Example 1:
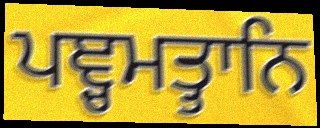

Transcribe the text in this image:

ਪਞ੍ਚਮਤ੍ਤਾਨਿ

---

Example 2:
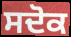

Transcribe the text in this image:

ਸਦੋਕ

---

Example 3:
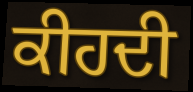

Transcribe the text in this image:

ਕੀਹਦੀ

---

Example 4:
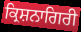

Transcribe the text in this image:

ਕ੍ਰਿਸ਼ਨਾਗਿਰੀ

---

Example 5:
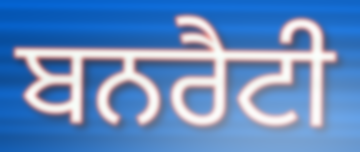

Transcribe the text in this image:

ਬਨਰੈਟੀ